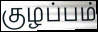
குழப்பம்